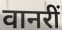
वानरीं